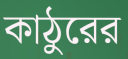
কাঠুরের